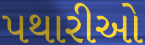
પથારીઓ